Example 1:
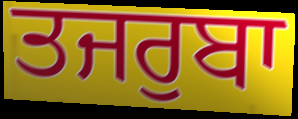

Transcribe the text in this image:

ਤਜਰੁਬਾ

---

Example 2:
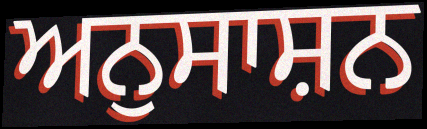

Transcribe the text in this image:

ਅਨੁਸਾਸ਼ਨ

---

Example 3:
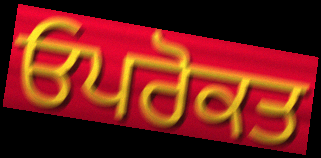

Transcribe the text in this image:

ਓਪਰੋਕਤ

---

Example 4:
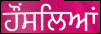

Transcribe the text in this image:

ਹੌਂਸਲਿਆਂ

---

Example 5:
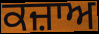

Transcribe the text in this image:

ਕਜ਼ਾਅ